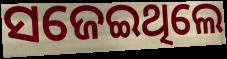
ସଜେଇଥିଲେ